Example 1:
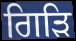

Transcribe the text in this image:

ਗਿੜਿ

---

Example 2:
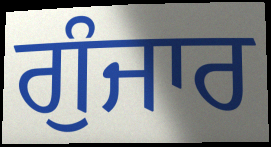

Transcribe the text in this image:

ਗੁੰਜਾਰ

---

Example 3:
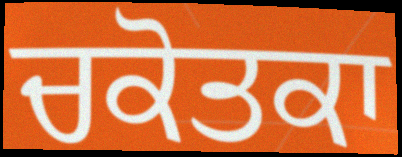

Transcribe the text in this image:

ਚਕੋਤਕਾ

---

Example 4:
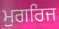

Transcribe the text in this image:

ਮੁਗਰਿਜ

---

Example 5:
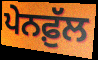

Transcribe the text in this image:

ਪੇਨਫ਼ੁੱਲ